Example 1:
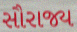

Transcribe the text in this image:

સૌરાજ્ય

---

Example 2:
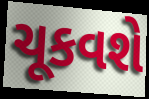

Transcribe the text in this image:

ચૂકવશે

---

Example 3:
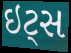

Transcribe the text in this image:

ઇટ્સ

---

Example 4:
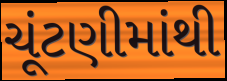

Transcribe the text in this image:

ચૂંટણીમાંથી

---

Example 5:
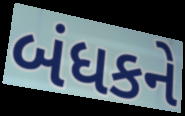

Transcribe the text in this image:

બંધકને